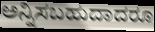
ಅನ್ನಿಸಬಹುದಾದರೂ